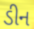
ડીન